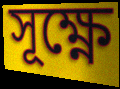
সূক্ষ্ণে